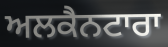
ਅਲਕੈਨਟਾਰਾ